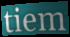
tiem